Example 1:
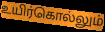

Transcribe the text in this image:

உயிர்கொல்லும்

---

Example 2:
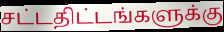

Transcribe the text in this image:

சட்டதிட்டங்களுக்கு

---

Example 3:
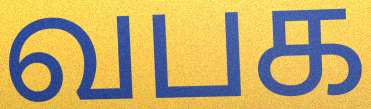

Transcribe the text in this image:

வபக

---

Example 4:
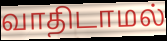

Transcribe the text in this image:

வாதிடாமல்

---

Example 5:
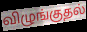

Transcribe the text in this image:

விழுங்குதல்